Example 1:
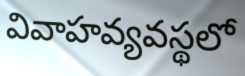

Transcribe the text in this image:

వివాహవ్యవస్థలో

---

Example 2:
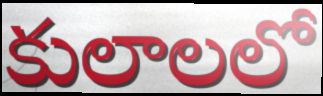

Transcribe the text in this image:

కులాలలో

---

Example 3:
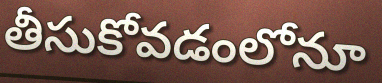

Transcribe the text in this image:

తీసుకోవడంలోనూ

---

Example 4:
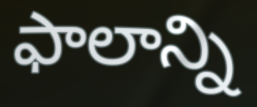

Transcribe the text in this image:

ఫాలాన్ని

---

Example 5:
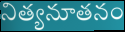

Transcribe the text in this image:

నిత్యనూతనం